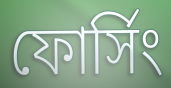
ফোর্সিং